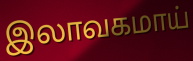
இலாவகமாய்